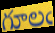
గూలఁ